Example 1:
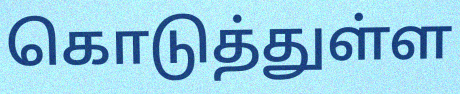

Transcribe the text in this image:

கொடுத்துள்ள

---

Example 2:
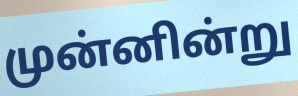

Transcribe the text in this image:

முன்னின்று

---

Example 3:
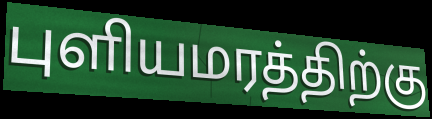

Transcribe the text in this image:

புளியமரத்திற்கு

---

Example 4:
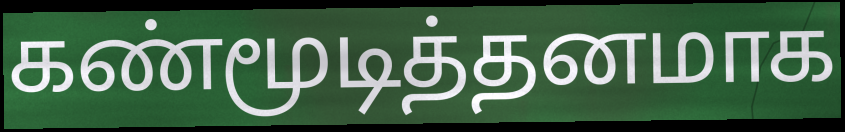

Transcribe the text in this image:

கண்மூடித்தனமாக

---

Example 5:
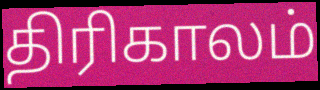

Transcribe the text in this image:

திரிகாலம்